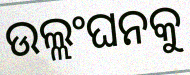
ଉଲ୍ଲଂଘନକୁ